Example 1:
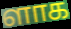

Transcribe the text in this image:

ளாக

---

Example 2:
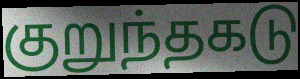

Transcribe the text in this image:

குறுந்தகடு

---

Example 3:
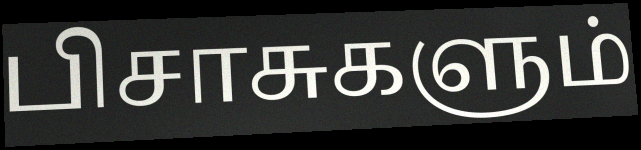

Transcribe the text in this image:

பிசாசுகளும்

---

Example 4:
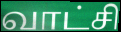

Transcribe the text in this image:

வாட்சி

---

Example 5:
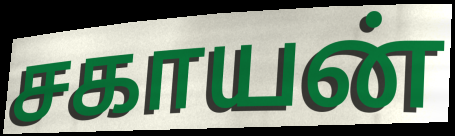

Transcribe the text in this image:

சகாயன்